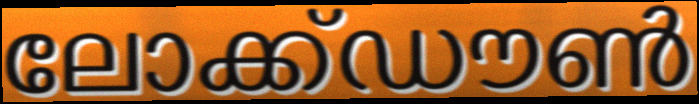
ലോക്ക്ഡൗൺ